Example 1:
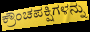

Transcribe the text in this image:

ಕ್ರೌಂಚಪಕ್ಷಿಗಳನ್ನು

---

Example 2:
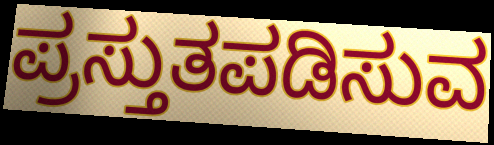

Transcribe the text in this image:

ಪ್ರಸ್ತುತಪಡಿಸುವ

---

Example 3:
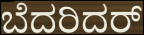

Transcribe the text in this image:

ಬೆದರಿದರ್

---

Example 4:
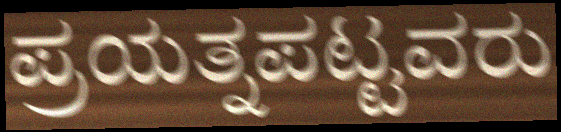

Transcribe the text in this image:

ಪ್ರಯತ್ನಪಟ್ಟವರು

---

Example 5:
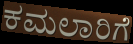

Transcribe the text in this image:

ಕಮಲಾರಿಗೆ